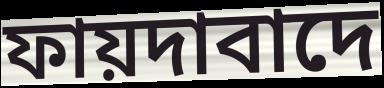
ফায়দাবাদে